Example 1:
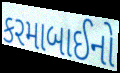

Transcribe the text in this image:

કરમાબાઈનો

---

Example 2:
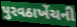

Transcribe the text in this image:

પુરવઠાખેંચની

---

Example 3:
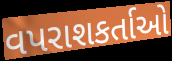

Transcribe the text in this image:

વપરાશકર્તાઓ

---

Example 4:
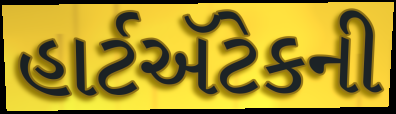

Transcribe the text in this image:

હાર્ટઍટેકની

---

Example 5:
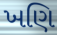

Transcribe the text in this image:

ખણિ